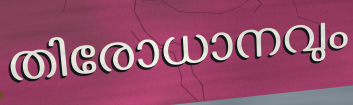
തിരോധാനവും